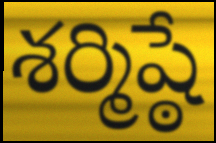
శర్మిష్ఠే